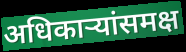
अधिकाऱ्यांसमक्ष